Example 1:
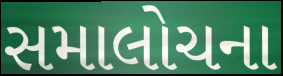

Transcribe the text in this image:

સમાલોચના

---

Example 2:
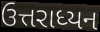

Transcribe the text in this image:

ઉત્તરાધ્યન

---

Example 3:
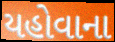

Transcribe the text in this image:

યહોવાના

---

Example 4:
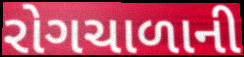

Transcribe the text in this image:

રોગચાળાની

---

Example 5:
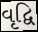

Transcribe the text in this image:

વૃદ્વિ